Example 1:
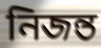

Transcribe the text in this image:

নিজন্ত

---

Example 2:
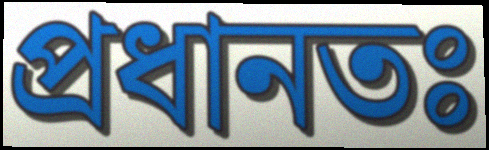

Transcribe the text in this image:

প্ৰধানতঃ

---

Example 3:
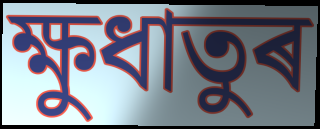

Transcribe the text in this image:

ক্ষুধাতুৰ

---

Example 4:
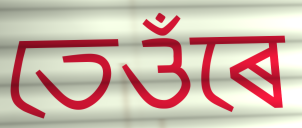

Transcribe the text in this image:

তেওঁৰে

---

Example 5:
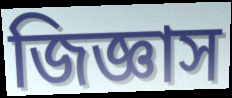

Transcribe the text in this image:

জিজ্ঞাস